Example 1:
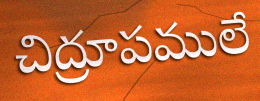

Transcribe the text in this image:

చిద్రూపములే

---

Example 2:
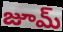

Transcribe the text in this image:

జూమ్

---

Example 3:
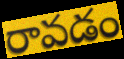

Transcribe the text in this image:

రావడం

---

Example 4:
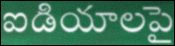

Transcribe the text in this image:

ఐడియాలపై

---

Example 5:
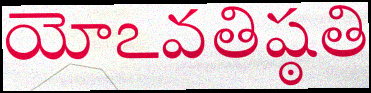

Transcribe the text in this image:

యోఽవతిష్ఠతి